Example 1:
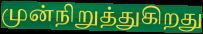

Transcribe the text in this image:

முன்நிறுத்துகிறது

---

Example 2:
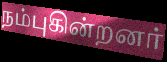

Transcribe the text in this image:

நம்புகின்றனர்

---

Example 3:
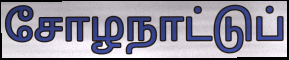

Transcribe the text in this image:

சோழநாட்டுப்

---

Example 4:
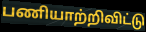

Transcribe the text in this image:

பணியாற்றிவிட்டு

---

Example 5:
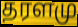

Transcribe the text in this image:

தரளமு